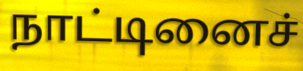
நாட்டினைச்